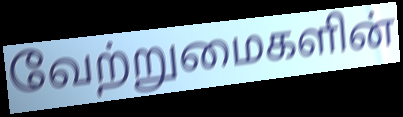
வேற்றுமைகளின்